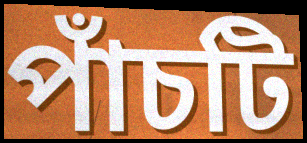
পাঁচটি